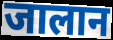
जालान